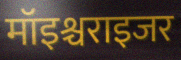
मॉइश्चराइजर